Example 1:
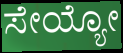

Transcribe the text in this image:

ಸೇಯ್ಯೋ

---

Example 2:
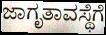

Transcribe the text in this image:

ಜಾಗೃತಾವಸ್ಥೆಗೆ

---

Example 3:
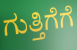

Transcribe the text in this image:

ಗುತ್ತಿಗೆಗೆ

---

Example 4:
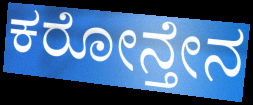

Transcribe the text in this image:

ಕರೋನ್ತೇನ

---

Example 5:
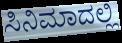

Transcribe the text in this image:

ಸಿನಿಮಾದಲ್ಲಿ